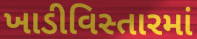
ખાડીવિસ્તારમાં